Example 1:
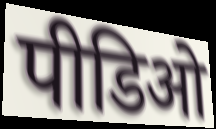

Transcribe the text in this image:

पीडिओ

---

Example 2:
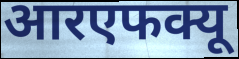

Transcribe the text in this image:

आरएफक्यू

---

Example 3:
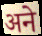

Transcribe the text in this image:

अने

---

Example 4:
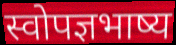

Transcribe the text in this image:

स्वोपज्ञभाष्य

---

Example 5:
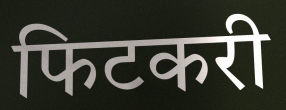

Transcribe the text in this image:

फिटकरी